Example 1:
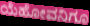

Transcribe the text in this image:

ಯೆಹೋವನಿಗೂ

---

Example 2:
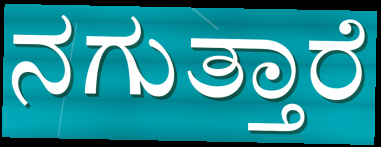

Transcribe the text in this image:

ನಗುತ್ತಾರೆ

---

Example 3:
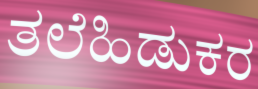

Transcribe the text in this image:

ತಲೆಹಿಡುಕರ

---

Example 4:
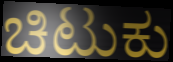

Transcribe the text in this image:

ಚಿಟುಕು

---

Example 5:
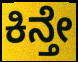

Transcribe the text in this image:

ಕಿನ್ತೇ